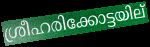
ശ്രീഹരിക്കോട്ടയില്